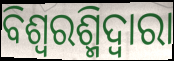
ବିଶ୍ୱରଶ୍ମିଦ୍ୱାରା